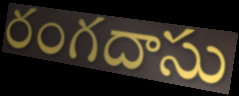
రంగదాసు